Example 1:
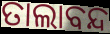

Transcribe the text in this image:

ତାଲାବନ୍ଦ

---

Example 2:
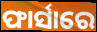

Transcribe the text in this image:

ଫାର୍ସାରେ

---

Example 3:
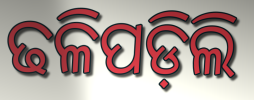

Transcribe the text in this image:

ଢଳିପଡ଼ିଲି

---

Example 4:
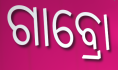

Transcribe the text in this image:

ଗାବ୍ରୋ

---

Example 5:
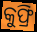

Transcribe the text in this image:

କୁଫ୍ରି